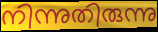
നിന്നുതിരുന്നു